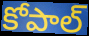
కోపాల్